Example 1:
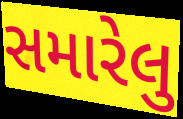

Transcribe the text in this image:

સમારેલુ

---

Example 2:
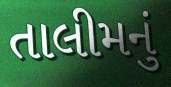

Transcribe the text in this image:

તાલીમનું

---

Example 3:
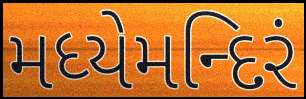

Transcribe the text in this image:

મધ્યેમન્દિરં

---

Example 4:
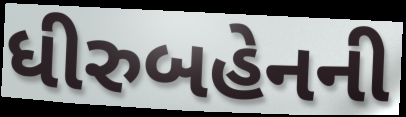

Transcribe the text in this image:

ધીરુબહેનની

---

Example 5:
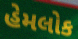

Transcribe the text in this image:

હેમલોક